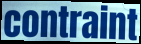
contraint